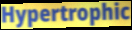
Hypertrophic